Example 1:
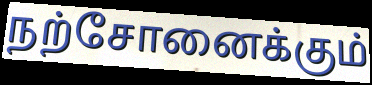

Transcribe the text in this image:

நற்சோனைக்கும்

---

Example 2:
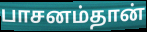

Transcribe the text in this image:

பாசனம்தான்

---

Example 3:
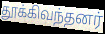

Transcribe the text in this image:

தூக்கிவந்தனர்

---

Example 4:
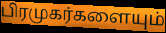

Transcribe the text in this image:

பிரமுகர்களையும்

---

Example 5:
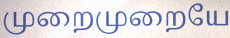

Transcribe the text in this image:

முறைமுறையே